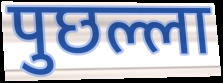
पुछल्ला